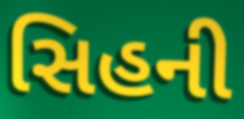
સિહની